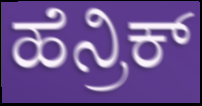
ಹೆನ್ರಿಕ್